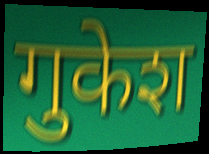
गुकेश